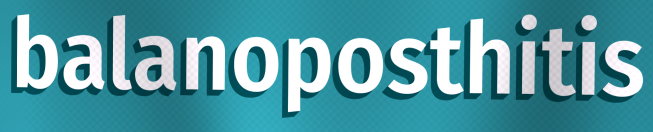
balanoposthitis